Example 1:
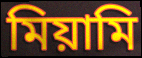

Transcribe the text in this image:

মিয়ামি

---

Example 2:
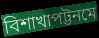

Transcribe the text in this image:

বিশাখাপট্টনমে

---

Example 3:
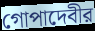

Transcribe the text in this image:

গোপাদেবীর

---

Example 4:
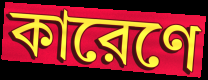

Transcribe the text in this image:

কারেণে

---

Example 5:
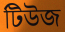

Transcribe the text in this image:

টিউজ